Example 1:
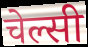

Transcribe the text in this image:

चेल्सी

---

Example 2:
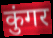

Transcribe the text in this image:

कुंगर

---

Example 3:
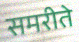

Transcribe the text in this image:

समरीते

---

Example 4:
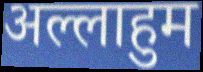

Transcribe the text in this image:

अल्लाहुम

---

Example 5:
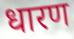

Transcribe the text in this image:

धारण